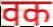
वक